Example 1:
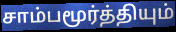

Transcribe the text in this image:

சாம்பமூர்த்தியும்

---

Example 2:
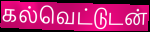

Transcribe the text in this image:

கல்வெட்டுடன்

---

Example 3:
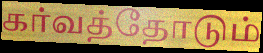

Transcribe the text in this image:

கர்வத்தோடும்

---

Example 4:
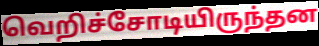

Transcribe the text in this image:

வெறிச்சோடியிருந்தன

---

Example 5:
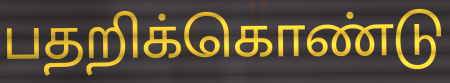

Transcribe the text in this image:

பதறிக்கொண்டு